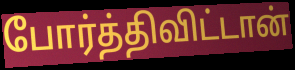
போர்த்திவிட்டான்